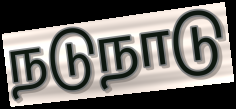
நடுநாடு